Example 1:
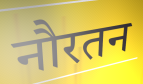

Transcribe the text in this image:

नौरतन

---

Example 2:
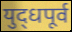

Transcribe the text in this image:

युद्धपूर्व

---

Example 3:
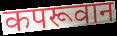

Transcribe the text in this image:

कपरूवान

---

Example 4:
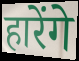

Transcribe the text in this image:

हारेंगे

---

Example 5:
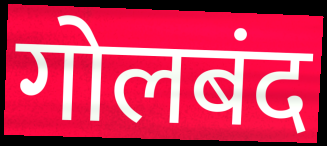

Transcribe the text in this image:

गोलबंद